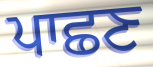
ਪਾਛਣ